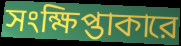
সংক্ষিপ্তাকারে